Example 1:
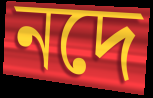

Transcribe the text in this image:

নদে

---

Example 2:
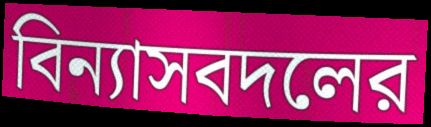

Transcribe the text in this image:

বিন্যাসবদলের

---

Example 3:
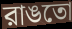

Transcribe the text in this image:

রাঙতো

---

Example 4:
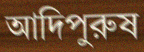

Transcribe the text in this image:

আদিপুরুষ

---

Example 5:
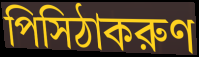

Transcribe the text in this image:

পিসিঠাকরুণ